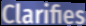
Clarifies